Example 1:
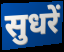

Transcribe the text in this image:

सुधरें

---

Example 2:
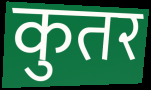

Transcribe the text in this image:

कुतर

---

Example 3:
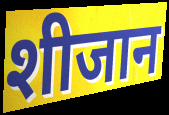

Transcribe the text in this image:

शीजान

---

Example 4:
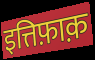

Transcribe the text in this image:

इत्तिफ़ाक़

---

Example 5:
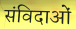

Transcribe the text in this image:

संविदाओं